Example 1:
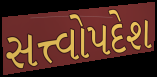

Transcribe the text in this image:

સત્ત્વોપદેશ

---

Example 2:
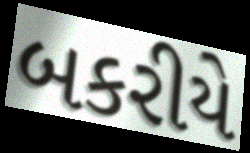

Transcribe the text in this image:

બકરીયે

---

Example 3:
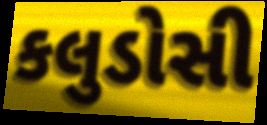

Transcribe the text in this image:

કલુડોસી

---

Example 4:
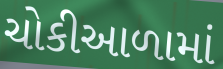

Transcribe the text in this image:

ચોકીઆળામાં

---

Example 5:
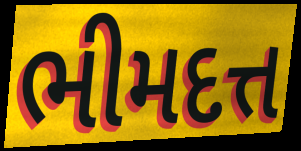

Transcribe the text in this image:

ભીમદત્ત